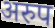
अरुप